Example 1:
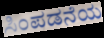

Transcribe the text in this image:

ಸಿಂಪಡನೆಯ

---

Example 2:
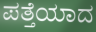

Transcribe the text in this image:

ಪತ್ತೆಯಾದ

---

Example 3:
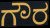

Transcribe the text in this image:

ಗೌರ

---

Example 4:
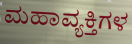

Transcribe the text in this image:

ಮಹಾವ್ಯಕ್ತಿಗಳ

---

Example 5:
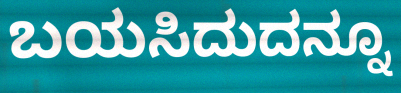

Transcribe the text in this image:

ಬಯಸಿದುದನ್ನೂ